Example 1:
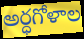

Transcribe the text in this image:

అర్ధగోళాల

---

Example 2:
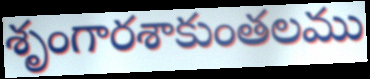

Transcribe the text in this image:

శృంగారశాకుంతలము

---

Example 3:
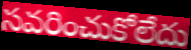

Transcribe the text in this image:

సవరించుకోలేదు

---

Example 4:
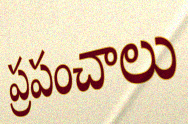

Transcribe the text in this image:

ప్రపంచాలు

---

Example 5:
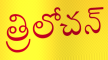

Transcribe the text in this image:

త్రిలోచన్